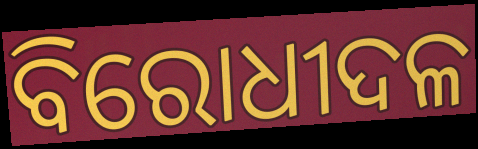
ବିରୋଧୀଦଳ